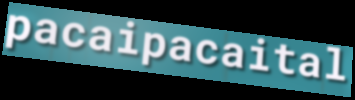
pacaipacaital